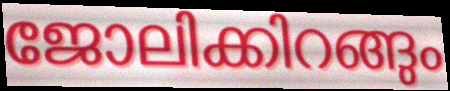
ജോലിക്കിറങ്ങും